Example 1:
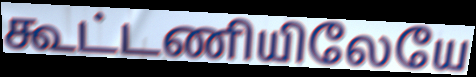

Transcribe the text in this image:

கூட்டணியிலேயே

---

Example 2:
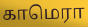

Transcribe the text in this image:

காமெரா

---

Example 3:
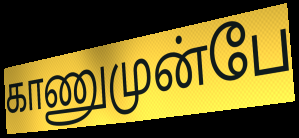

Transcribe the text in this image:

காணுமுன்பே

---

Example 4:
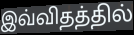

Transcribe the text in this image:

இவ்விதத்தில்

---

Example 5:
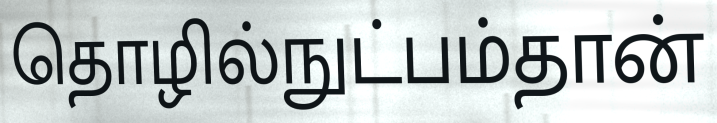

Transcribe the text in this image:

தொழில்நுட்பம்தான்